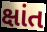
ક્ષાંત